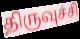
திருவுச்சி